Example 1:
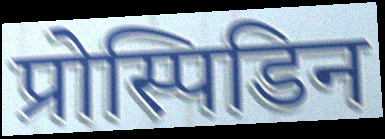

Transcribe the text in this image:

प्रोस्पिडिन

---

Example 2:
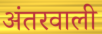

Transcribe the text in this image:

अंतरवाली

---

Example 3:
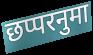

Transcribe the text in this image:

छप्परनुमा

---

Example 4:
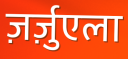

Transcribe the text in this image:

ज़र्ज़ुएला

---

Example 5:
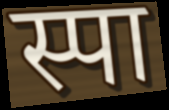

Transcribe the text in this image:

स्पा